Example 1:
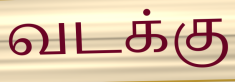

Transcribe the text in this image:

வடக்கு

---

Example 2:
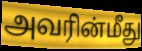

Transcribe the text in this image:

அவரின்மீது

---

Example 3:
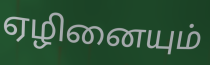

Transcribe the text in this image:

ஏழினையும்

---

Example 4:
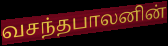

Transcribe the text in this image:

வசந்தபாலனின்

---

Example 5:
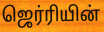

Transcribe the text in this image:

ஜெர்ரியின்